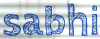
sabhi